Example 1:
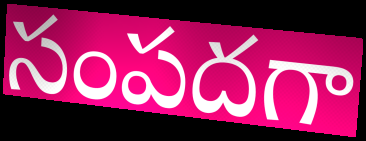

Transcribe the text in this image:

సంపదగా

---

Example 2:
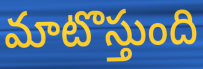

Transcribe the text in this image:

మాటొస్తుంది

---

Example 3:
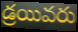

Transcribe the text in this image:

డ్రయివరు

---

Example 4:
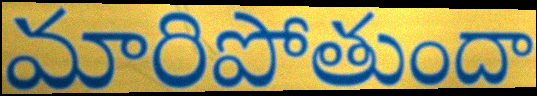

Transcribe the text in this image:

మారిపోతుందా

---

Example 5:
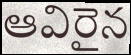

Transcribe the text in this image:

ఆవిరైన